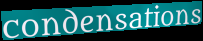
condensations